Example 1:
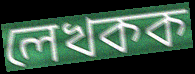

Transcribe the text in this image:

লেখকক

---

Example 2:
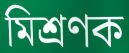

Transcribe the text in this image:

মিশ্ৰণক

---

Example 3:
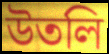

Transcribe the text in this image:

উতলি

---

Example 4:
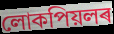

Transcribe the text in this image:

লোকপিয়লৰ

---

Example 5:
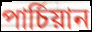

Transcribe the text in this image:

পাৰ্চিয়ান